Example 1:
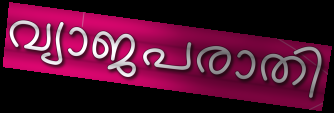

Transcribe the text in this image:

വ്യാജപരാതി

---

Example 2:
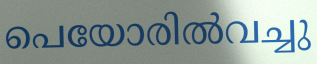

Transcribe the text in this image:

പെയോരിൽവച്ചു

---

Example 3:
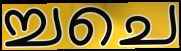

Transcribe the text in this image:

ച്ചചെ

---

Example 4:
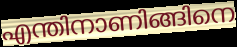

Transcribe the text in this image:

എന്തിനാണിങ്ങിനെ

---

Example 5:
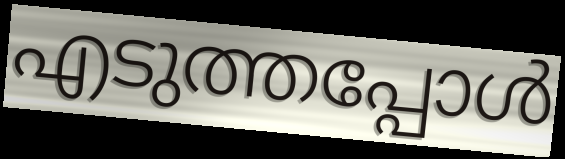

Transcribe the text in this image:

എടുത്തപ്പോൾ